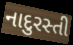
નાદુરસ્તી